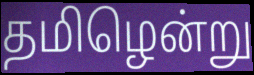
தமிழென்று